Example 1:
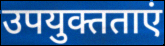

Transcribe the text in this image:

उपयुक्तताएं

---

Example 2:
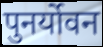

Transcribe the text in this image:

पुनर्योवन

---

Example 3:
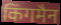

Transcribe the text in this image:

किंगमैन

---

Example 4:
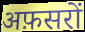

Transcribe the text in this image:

अफ़सरों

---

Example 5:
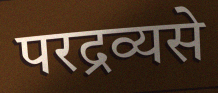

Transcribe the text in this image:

परद्रव्यसे